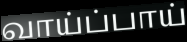
வாய்ப்பாய்